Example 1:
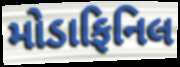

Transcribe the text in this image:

મોડાફિનિલ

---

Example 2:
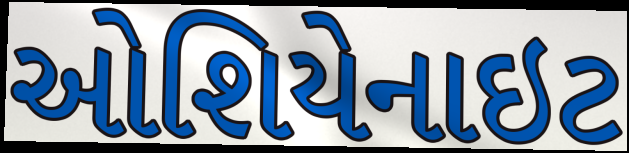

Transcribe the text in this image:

ઓશિયેનાઇટ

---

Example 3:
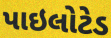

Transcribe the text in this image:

પાઇલોટેડ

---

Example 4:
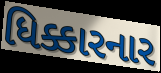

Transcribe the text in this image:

ધિક્કારનાર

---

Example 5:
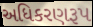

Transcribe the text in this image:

અધિકરણરૂપ